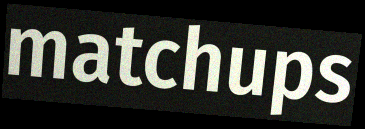
matchups